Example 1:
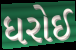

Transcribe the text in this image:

ધરોઈ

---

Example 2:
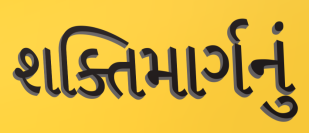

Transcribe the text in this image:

શક્તિમાર્ગનું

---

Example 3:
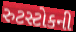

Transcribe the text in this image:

રુટસ્ટોકની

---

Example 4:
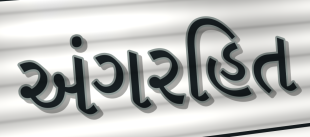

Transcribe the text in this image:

અંગરહિત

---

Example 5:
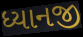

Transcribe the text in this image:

ધ્યાનજી